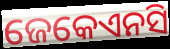
ଜେକେଏନସି